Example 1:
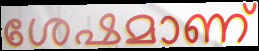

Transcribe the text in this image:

ശേഷമാണ്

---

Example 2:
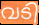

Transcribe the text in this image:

വടി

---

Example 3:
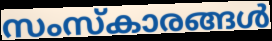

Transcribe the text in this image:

സംസ്കാരങ്ങൾ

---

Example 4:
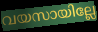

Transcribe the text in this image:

വയസായില്ലേ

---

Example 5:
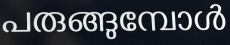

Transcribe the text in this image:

പരുങ്ങുമ്പോൾ